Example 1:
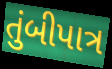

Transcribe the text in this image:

તુંબીપાત્ર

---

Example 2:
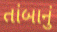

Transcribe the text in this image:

તાંબાનું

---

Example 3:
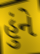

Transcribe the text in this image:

હુંને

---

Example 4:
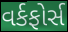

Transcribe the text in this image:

વર્કફોર્સ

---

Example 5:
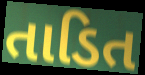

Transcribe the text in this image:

તાડિત